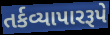
તર્કવ્યાપારરૂપે